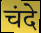
चंदे